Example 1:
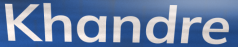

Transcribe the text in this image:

Khandre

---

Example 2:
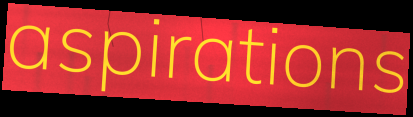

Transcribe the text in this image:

aspirations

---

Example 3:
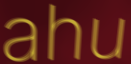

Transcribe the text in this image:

ahu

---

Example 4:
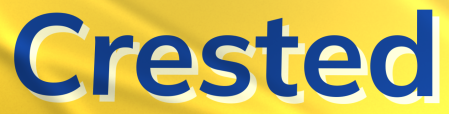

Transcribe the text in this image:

Crested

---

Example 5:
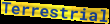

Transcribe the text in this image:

Terrestrial